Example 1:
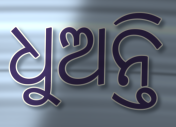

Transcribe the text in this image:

ଧୁଅନ୍ତି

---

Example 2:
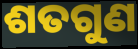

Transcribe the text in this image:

ଶତଗୁଣ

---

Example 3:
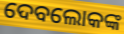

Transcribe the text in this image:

ଦେବଲୋକଙ୍କ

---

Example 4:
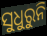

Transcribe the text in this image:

ସୁଧୁରୁନି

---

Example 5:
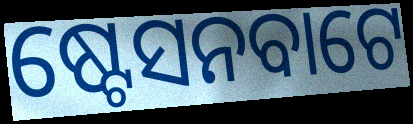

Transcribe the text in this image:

ଷ୍ଟେସନବାଟେ